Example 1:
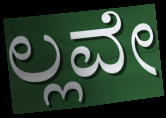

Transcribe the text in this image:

ಲ್ಲವೇ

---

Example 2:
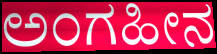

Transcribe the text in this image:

ಅಂಗಹೀನ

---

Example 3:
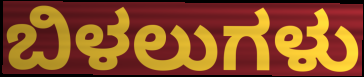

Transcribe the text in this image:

ಬಿಳಲುಗಳು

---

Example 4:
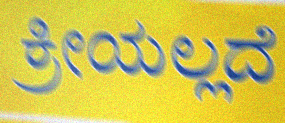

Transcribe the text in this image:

ಕ್ರೀಯಲ್ಲದೆ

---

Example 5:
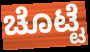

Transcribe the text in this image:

ಚೊಟ್ಟೆ